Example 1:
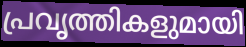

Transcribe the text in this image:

പ്രവൃത്തികളുമായി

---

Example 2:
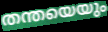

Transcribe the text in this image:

തന്തയെയും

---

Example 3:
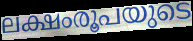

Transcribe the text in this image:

ലക്ഷംരൂപയുടെ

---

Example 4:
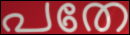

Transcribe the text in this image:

പതേ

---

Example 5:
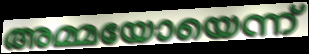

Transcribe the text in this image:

അമ്മയോയെന്ന്